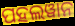
ପହଲୱାନ